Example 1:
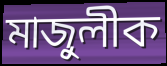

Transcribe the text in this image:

মাজুলীক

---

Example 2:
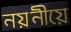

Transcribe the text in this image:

নয়নীয়ে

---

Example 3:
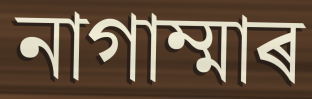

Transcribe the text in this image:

নাগাম্মাৰ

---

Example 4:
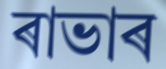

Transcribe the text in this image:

ৰাভাৰ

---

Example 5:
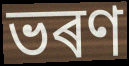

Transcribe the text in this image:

ভৰণ